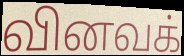
வினவக்